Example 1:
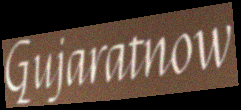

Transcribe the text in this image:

Gujaratnow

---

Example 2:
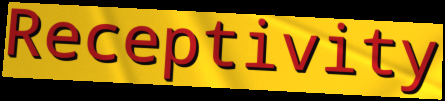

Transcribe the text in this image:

Receptivity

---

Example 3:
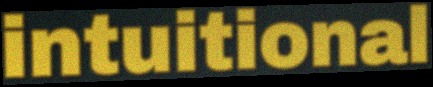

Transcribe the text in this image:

intuitional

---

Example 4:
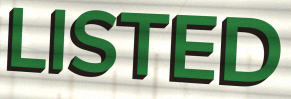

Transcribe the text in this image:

LISTED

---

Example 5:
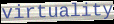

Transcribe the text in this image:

virtuality